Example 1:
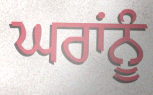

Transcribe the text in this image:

ਘਰਾਂਨੂੰ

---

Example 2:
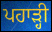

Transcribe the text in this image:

ਪਹਾੜ੍ਹੀ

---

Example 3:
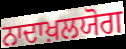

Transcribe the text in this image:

ਨਾਦਾਖ਼ਲਯੋਗ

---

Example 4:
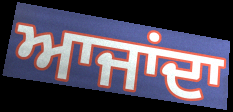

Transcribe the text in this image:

ਆਜਾਂਦਾ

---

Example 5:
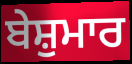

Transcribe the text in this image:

ਬੇਸ਼ੁਮਾਰ